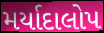
મર્યાદાલોપ